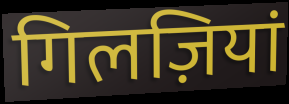
गिलज़ियां